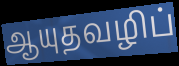
ஆயுதவழிப்